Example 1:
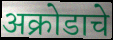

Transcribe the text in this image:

अक्रोडाचे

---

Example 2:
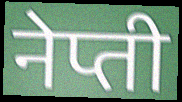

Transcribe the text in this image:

नेप्ती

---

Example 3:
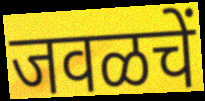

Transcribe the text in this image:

जवळचें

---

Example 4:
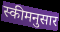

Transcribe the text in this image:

स्कीमनुसार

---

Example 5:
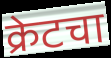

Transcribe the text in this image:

क्रेटचा